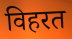
विहरत